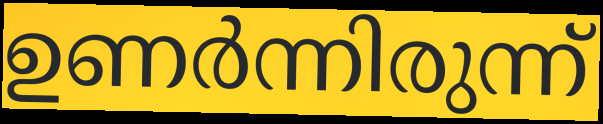
ഉണർന്നിരുന്ന്